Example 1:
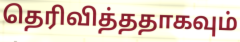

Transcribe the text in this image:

தெரிவித்ததாகவும்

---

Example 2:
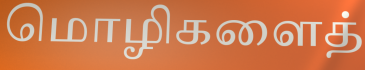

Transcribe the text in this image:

மொழிகளைத்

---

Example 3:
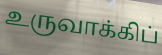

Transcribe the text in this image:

உருவாக்கிப்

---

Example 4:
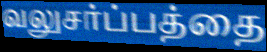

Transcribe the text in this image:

வலுசர்ப்பத்தை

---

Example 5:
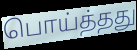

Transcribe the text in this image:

பொய்த்தது